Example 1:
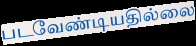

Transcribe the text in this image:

படவேண்டியதில்லை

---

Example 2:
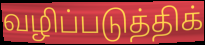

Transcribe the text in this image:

வழிப்படுத்திக்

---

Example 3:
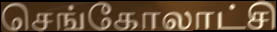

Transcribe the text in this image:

செங்கோலாட்சி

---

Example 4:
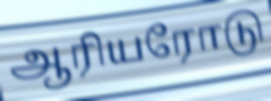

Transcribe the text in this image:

ஆரியரோடு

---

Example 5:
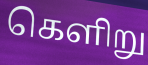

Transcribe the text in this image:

கெளிறு